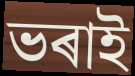
ভৰাই